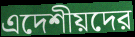
এদেশীয়দের